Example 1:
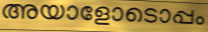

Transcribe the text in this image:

അയാളോടൊപ്പം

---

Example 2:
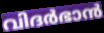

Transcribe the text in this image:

വിദർഭാൻ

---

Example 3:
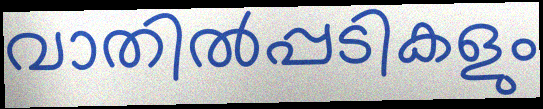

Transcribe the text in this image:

വാതിൽപ്പടികളും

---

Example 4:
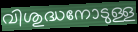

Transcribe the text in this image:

വിശുദ്ധനോടുള്ള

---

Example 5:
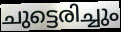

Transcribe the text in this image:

ചുട്ടെരിച്ചും